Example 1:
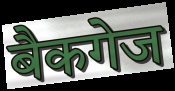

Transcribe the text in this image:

बैकगेज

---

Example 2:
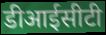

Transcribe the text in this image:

डीआईसीटी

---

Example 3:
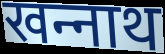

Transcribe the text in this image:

खन्नाथ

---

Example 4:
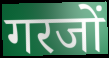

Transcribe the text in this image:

गरजों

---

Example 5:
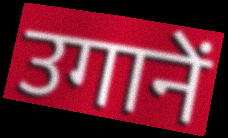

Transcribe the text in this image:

उगानें